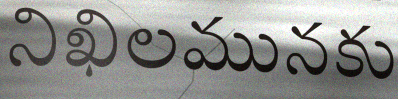
నిఖిలమునకు